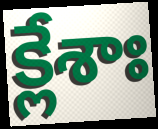
క్లేశాః